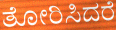
ತೋರಿಸಿದರೆ